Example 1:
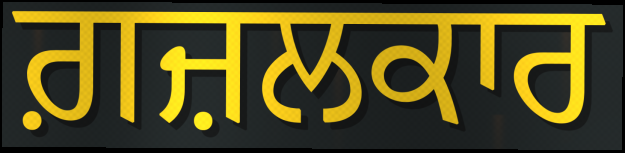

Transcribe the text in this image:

ਗ਼ਜ਼ਲਕਾਰ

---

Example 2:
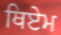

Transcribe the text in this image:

ਥਿਏਮ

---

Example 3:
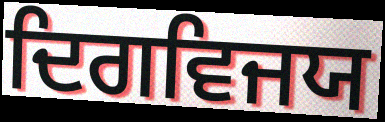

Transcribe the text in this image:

ਦਿਗਵਿਜਯ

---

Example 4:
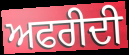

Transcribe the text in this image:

ਅਫਰੀਦੀ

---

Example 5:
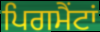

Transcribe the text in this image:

ਪਿਗਮੈਂਟਾਂ